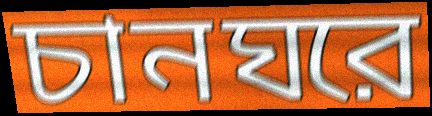
চানঘরে